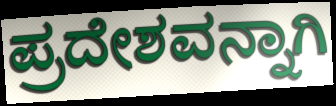
ಪ್ರದೇಶವನ್ನಾಗಿ